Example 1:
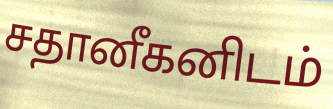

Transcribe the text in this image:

சதானீகனிடம்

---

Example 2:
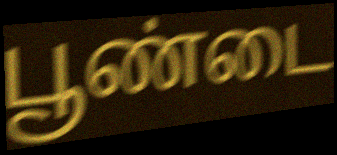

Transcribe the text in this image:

பூண்டை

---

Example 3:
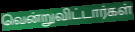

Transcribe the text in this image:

வென்றுவிட்டார்கள்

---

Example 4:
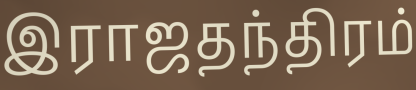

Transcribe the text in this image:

இராஜதந்திரம்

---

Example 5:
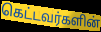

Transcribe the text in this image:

கெட்டவர்களின்